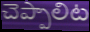
చెప్పాలిట